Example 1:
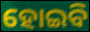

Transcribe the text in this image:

ହୋଇବି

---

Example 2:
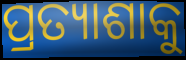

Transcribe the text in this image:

ପ୍ରତ୍ୟାଶାକୁ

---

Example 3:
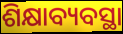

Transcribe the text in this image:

ଶିକ୍ଷାବ୍ୟବସ୍ଥା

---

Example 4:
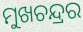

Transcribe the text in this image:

ମୁଖଚନ୍ଦ୍ରର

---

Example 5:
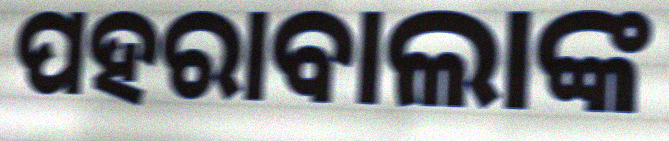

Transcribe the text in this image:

ପହରାବାଲାଙ୍କ